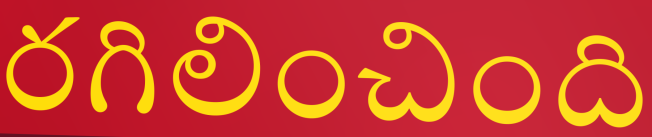
రగిలించింది